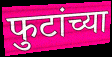
फुटांच्‍या